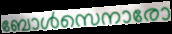
ബോൾസെനാരോ